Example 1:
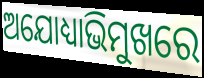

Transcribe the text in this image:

ଅଯୋଧ୍ୟାଭିମୁଖରେ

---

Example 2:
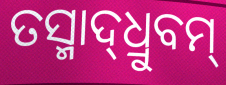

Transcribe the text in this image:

ତସ୍ମାଦ୍‌ଧ୍ରୁବମ୍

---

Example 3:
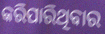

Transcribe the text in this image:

କରିପାରିଥିବାର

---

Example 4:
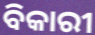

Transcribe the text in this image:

ବିକାରୀ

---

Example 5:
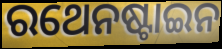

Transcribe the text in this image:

ରଥେନଷ୍ଟାଇନ